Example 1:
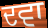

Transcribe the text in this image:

ਦਵਾ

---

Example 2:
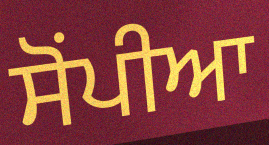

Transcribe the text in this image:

ਸੋਂਪੀਆ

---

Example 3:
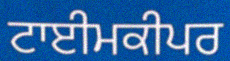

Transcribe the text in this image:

ਟਾਈਮਕੀਪਰ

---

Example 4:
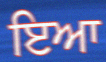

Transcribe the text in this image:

ਇਆ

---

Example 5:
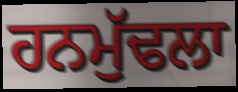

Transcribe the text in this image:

ਹਨਮੁੱਢਲਾ